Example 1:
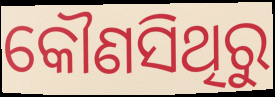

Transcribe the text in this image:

କୌଣସିଥିରୁ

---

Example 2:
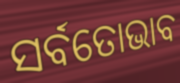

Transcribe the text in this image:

ସର୍ବତୋଭାବ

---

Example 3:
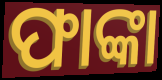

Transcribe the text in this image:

ଫାଙ୍କା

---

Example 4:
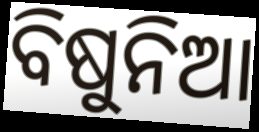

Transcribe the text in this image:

ବିଷୁନିଆ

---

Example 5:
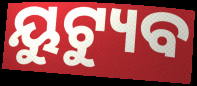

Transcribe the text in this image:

ୟୁଟ୍ୟୁବ